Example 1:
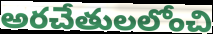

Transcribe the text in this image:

అరచేతులలోంచి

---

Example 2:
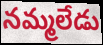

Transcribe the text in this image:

నమ్మలేడు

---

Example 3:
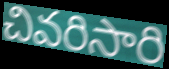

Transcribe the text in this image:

చివరిసారి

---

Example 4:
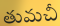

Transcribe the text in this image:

తుమచీ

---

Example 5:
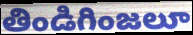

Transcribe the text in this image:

తిండిగింజలూ